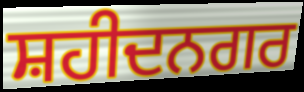
ਸ਼ਹੀਦਨਗਰ